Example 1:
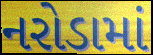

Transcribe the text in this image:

નરોડામાં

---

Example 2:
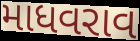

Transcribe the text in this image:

માધવરાવ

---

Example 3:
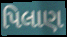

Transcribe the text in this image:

પિલાણ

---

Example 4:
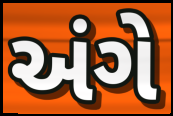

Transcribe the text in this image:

અંગે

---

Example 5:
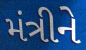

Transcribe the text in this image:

મંત્રીને